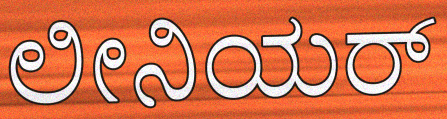
ಲೀನಿಯರ್